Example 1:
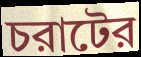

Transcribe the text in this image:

চরাটের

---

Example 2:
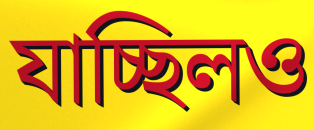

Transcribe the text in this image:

যাচ্ছিলও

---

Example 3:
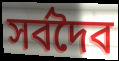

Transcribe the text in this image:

সর্বদৈব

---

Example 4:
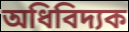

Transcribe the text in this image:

অধিবিদ্যক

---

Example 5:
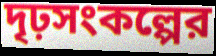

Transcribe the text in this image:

দৃঢ়সংকল্পের